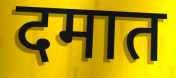
दमात